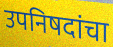
उपनिषदांचा